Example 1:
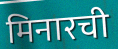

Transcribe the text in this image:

मिनारची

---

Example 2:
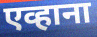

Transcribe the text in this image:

एव्हाना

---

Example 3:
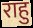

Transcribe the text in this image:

राहु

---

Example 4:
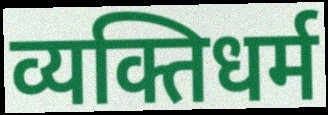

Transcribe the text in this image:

व्यक्तिधर्म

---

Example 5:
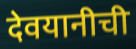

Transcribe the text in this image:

देवयानीची